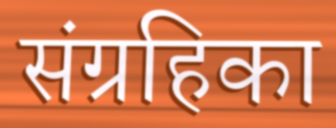
संग्रहिका